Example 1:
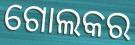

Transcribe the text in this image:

ଗୋଲକର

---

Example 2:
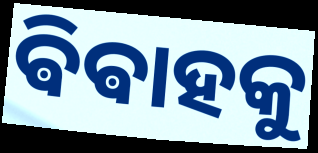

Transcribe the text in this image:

ଵିଵାହକୁ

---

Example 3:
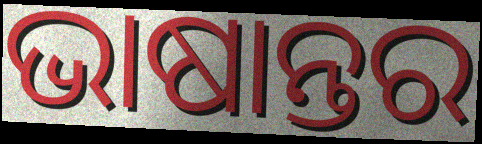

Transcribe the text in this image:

ଭାଷାନ୍ତର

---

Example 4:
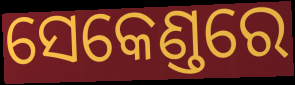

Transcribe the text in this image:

ସେକେଣ୍ଡରେ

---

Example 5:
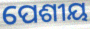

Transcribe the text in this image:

ପେଶୀୟ